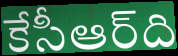
కేసీఆర్‌ది